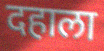
दहाला